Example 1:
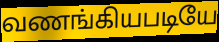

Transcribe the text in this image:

வணங்கியபடியே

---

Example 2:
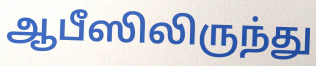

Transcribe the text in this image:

ஆபீஸிலிருந்து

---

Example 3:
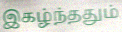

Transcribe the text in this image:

இகழ்ந்ததும்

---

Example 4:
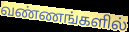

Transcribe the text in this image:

வண்ணங்களில்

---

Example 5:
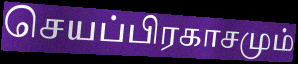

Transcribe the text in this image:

செயப்பிரகாசமும்